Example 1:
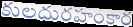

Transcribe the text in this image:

కులదురహంకార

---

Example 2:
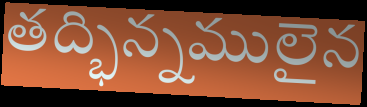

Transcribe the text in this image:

తద్భిన్నములైన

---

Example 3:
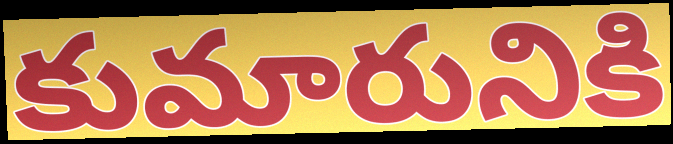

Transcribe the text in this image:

కుమారునికి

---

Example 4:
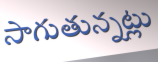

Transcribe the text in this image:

సాగుతున్నట్లు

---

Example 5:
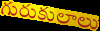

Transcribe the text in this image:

గురుకులాలు